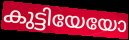
കുട്ടിയേയോ